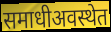
समाधीअवस्थेत